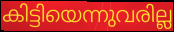
കിട്ടിയെന്നുവരില്ല